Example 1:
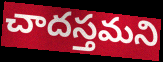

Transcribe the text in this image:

చాదస్తమని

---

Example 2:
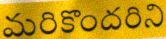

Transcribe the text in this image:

మరికొందరిని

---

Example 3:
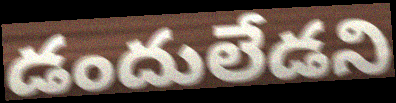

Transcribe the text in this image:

డందులేడని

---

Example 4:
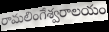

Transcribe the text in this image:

రామలింగేశ్వరాలయం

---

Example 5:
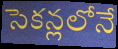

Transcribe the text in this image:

సెకన్లలోనే